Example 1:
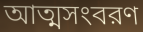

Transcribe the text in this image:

আত্মসংবরণ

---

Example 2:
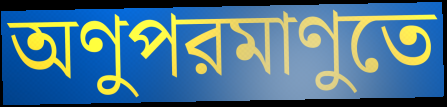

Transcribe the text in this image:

অণুপরমাণুতে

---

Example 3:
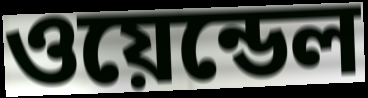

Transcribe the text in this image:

ওয়েন্ডেল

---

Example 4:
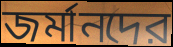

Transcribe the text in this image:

জর্মানদের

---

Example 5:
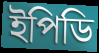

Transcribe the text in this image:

ইপিডি